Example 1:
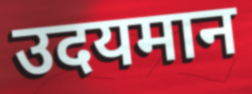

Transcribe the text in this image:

उदयमान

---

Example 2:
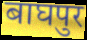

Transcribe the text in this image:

बाघपुर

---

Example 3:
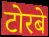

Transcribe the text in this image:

टोरबे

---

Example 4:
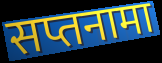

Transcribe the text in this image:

सप्तनामा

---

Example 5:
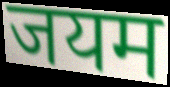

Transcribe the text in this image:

जयम